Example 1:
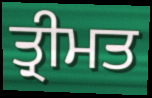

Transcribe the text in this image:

ਤ੍ਰੀਮਤ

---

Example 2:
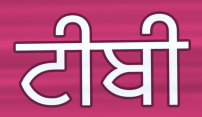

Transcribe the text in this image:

ਟੀਬੀ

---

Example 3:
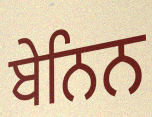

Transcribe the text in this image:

ਬੇਨਿਨ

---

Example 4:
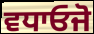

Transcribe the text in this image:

ਵਧਾਓਜੋ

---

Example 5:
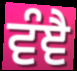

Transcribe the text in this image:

ਵੰਞੈ